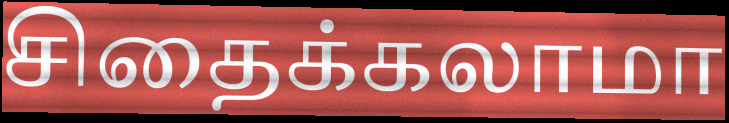
சிதைக்கலாமா